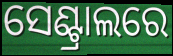
ସେଣ୍ଟ୍ରାଲରେ